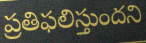
ప్రతిఫలిస్తుందని